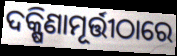
ଦକ୍ଷିଣାମୂର୍ତ୍ତୀଠାରେ